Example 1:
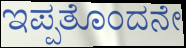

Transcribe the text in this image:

ಇಪ್ಪತೊಂದನೇ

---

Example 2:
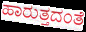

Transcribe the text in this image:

ಹಾರುತ್ತದಂತೆ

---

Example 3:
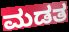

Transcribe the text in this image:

ಮಡತ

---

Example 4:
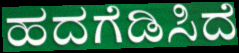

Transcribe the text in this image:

ಹದಗೆಡಿಸಿದೆ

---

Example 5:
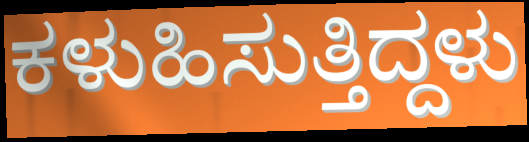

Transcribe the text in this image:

ಕಳುಹಿಸುತ್ತಿದ್ದಳು